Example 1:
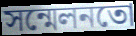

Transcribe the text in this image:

সন্মেলনতো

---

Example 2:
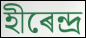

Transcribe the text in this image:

হীৰেন্দ্ৰ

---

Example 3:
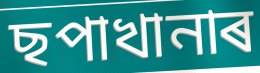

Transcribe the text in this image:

ছপাখানাৰ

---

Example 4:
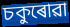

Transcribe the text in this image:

চকুৰোৱা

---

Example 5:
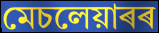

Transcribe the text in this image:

মেচলেয়াৰৰ